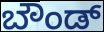
ಬೌಂಡ್